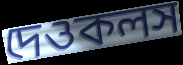
দেওকলস